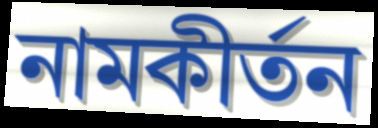
নামকীর্তন